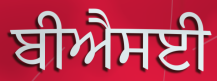
ਬੀਐਸਈ